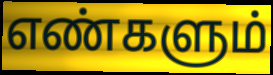
எண்களும்